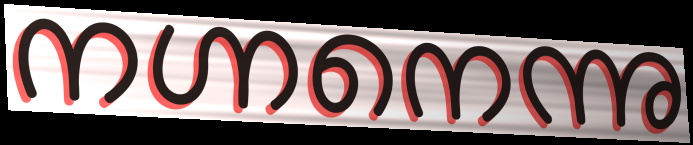
നഗ്നനെന്നു